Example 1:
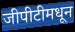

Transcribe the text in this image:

जीपीटीमधून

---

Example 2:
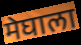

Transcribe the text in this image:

मेघाला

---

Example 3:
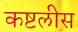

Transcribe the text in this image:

कष्टलीस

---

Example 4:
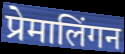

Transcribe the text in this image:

प्रेमालिंगन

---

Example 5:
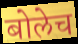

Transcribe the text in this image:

बोलेच